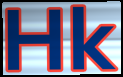
Hk